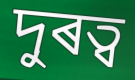
দুৰত্ব